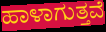
ಹಾಳಾಗುತ್ತವೆ